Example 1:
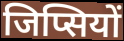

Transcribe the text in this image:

जिप्सियों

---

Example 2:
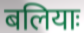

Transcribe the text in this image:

बलियाः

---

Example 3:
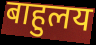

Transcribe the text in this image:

बाहुलय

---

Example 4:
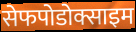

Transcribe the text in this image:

सेफपोडोक्साइम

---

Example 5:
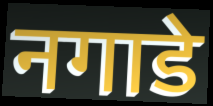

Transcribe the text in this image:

नगाडे